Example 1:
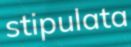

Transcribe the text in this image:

stipulata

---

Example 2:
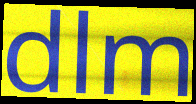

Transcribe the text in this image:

dlm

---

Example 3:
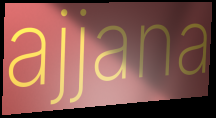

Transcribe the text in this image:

ajjana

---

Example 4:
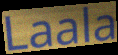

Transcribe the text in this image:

Laala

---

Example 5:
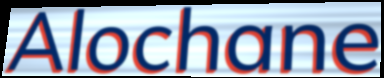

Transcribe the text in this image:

Alochane